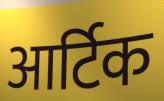
आर्टिक